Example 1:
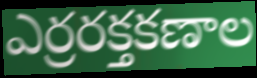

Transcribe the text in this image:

ఎర్రరక్తకణాల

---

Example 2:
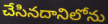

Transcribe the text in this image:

చేసినదానిలోను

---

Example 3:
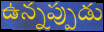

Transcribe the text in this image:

ఉన్నప్పుడు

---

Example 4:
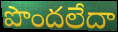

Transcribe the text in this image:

పొందలేదా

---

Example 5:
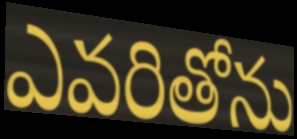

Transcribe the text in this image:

ఎవరితోను